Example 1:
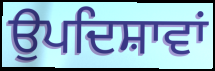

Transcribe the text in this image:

ਉਪਦਿਸ਼ਾਵਾਂ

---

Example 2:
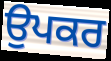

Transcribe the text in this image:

ਉਪਕਰ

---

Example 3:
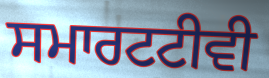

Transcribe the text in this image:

ਸਮਾਰਟਟੀਵੀ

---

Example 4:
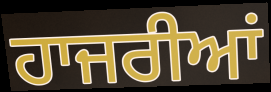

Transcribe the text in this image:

ਹਾਜਰੀਆਂ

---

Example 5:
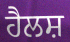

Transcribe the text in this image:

ਹੈਲਸ਼